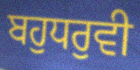
ਬਹੁਧਰੁਵੀ